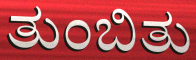
ತುಂಬಿತು